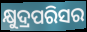
କ୍ଷୁଦ୍ରପରିସର